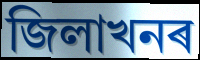
জিলাখনৰ